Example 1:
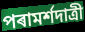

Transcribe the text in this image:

পৰামৰ্শদাত্ৰী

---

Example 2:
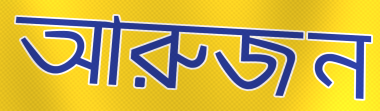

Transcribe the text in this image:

আৰুজন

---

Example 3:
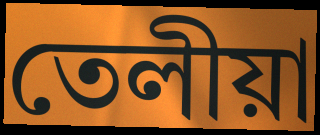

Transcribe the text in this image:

তেলীয়া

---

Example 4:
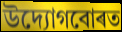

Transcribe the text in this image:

উদ্যোগবোৰত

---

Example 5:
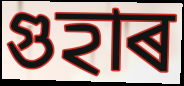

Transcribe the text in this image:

গুহাৰ